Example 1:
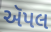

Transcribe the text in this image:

ઍપલ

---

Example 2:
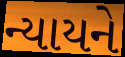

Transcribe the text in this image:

ન્યાયને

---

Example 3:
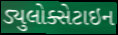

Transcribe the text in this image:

ડ્યુલોક્સેટાઇન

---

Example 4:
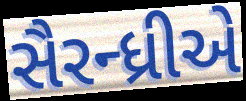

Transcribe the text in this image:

સૈરન્ધ્રીએ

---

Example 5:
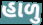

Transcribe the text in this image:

હાળુ